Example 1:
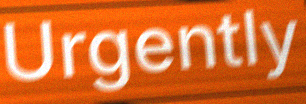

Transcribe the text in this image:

Urgently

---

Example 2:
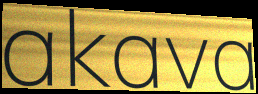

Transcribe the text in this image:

akava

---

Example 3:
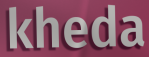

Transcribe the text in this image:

kheda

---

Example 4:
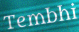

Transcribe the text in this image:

Tembhi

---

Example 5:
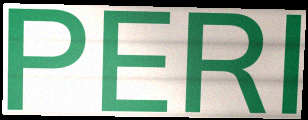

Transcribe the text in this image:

PERI